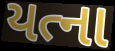
યત્ના